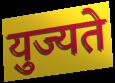
युज्यते